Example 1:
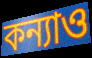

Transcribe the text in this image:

কন্যাও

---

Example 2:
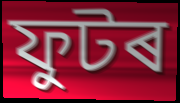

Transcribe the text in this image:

ফুটৰ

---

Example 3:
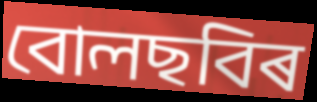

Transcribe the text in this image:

বোলছবিৰ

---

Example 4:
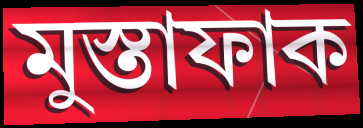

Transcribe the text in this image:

মুস্তাফাক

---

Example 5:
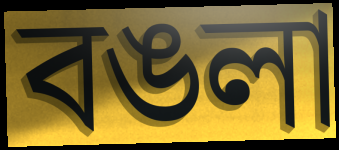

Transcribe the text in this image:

বঙলা